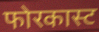
फोरकास्ट